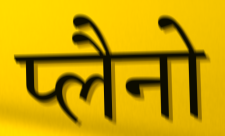
प्लैनो